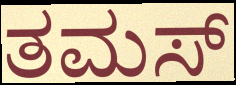
ತಮಸ್